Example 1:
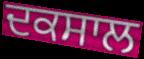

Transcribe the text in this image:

ਦਕਸਾਲ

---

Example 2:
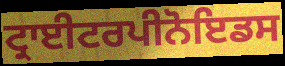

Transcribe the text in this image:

ਟ੍ਰਾਈਟਰਪੀਨੋਇਡਸ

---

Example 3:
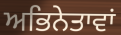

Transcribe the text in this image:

ਅਭਿਨੇਤਾਵਾਂ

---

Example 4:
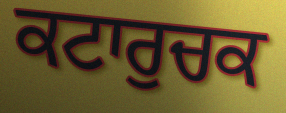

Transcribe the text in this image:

ਕਟਾਰੁਚਕ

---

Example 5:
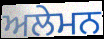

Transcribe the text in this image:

ਅਲੇਮਨ